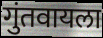
गुंतवायला